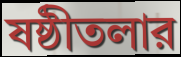
ষষ্ঠীতলার